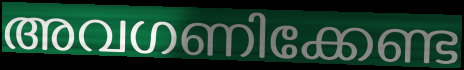
അവഗണിക്കേണ്ട